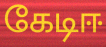
கேடிஈ